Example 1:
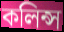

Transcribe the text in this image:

কলিন্স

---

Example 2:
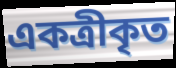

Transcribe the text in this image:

একত্রীকৃত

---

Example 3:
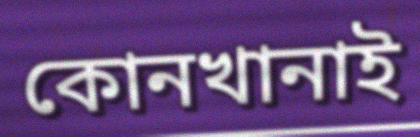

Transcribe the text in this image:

কোনখানাই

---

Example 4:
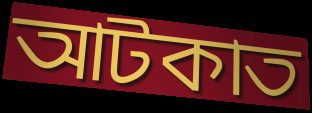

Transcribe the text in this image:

আটকাত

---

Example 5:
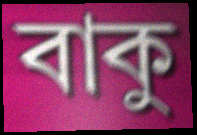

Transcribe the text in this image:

বাকু